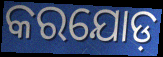
କରଯୋଡ଼